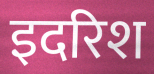
इदरिश